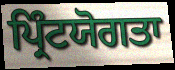
ਪ੍ਰਿੰਟਯੋਗਤਾ